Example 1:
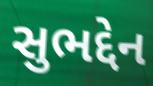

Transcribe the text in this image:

સુભદ્દેન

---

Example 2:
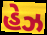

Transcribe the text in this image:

હેઝ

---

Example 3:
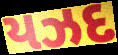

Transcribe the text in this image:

યઝદ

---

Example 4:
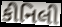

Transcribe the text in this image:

કીનિલી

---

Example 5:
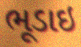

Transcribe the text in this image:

ભૂડાઇ